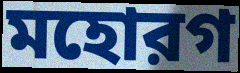
মহোরগ